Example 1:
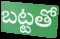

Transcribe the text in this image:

బట్టతో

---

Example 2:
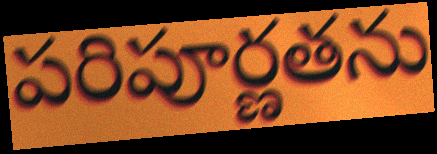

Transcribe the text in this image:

పరిపూర్ణతను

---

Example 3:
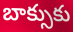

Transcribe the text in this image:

బాక్సుకు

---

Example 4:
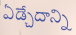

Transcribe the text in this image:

ఏడ్చేదాన్ని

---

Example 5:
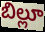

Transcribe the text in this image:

బిల్లూ